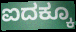
ಐದಕ್ಕೂ